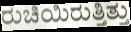
ರುಚಿಯಿರುತ್ತಿತ್ತು